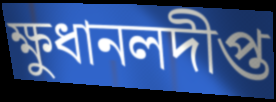
ক্ষুধানলদীপ্ত